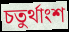
চতুর্থাংশ